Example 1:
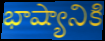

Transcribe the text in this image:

భాష్యానికి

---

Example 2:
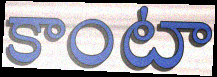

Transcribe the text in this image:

కాంటా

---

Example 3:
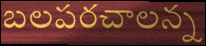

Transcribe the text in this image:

బలపరచాలన్న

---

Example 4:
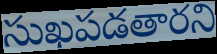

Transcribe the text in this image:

సుఖపడతారని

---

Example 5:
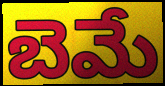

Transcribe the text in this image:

బెమే